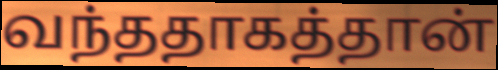
வந்ததாகத்தான்